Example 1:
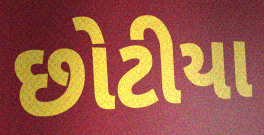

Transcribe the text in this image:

છોટીયા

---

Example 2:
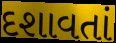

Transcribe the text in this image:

દશાવતાં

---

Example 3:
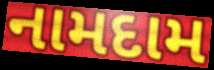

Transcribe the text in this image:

નામદામ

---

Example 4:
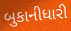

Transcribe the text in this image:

બુકાનીધારી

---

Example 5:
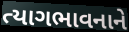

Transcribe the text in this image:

ત્યાગભાવનાને